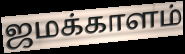
ஜமக்காளம்